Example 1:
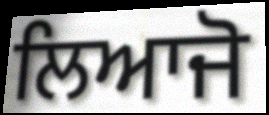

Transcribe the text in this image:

ਲਿਆਜੋ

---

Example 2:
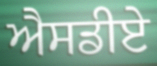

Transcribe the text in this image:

ਐਸਡੀਏ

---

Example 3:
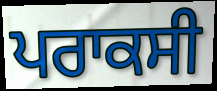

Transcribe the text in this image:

ਪਰਾਕਸੀ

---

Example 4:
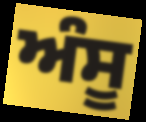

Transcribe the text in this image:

ਅੰਸੂ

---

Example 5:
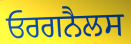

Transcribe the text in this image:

ਓਰਗਨੈਲਸ